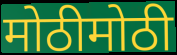
मोठीमोठी